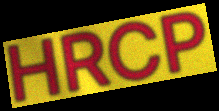
HRCP